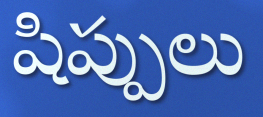
షిప్పులు